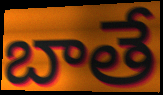
బాతే